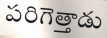
పరిగెత్తాడు